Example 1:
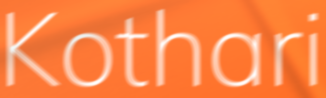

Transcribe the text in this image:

Kothari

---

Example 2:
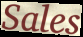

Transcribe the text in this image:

Sales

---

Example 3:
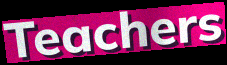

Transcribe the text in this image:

Teachers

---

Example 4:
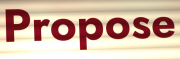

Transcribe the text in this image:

Propose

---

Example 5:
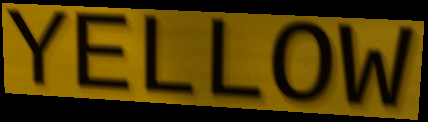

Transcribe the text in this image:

YELLOW